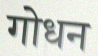
गोधन